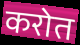
करोत